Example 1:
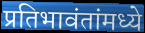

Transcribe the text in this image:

प्रतिभावंतांमध्ये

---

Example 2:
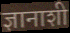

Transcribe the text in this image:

ज्ञानाशी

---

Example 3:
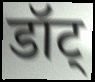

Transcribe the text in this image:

डॉट्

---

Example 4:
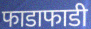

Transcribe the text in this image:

फाडाफाडी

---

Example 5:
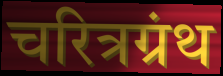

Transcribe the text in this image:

चरित्रग्रंथ